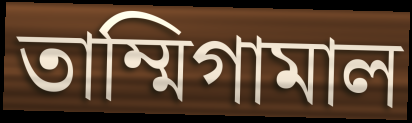
তাম্মিগামাল